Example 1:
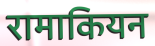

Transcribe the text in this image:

रामाकियन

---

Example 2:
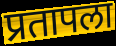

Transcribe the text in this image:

प्रतापला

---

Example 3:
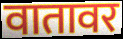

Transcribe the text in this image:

वातावर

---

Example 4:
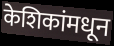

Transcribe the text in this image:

केशिकांमधून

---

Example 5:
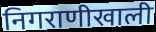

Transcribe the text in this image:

निगराणीखाली